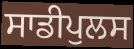
ਸਾਡੀਪੁਲਸ